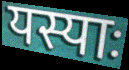
यस्याः